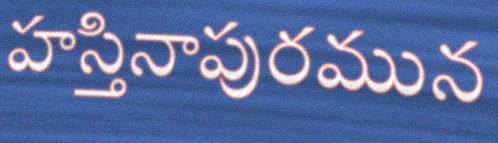
హస్తినాపురమున